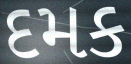
દમક